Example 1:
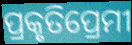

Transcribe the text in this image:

ପ୍ରକୃତିପ୍ରେମୀ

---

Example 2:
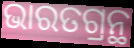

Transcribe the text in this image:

ଭାରତଗ୍ରନ୍ଥ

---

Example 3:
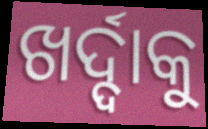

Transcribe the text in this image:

ଖର୍ଦ୍ଦାକୁ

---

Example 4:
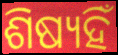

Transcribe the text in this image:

ଶିଷ୍ୟହିଁ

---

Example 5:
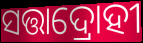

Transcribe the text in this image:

ସତ୍ତାଦ୍ରୋହୀ